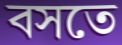
বসতে